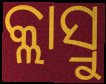
କ୍ଲାସ୍ରୁ